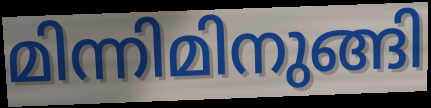
മിന്നിമിനുങ്ങി